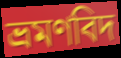
ভ্রমণবিদ